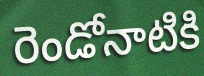
రెండోనాటికి